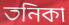
তনিকা